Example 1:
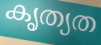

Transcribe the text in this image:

കൃത്യത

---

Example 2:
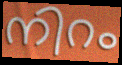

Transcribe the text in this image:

നിറം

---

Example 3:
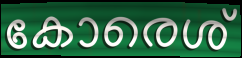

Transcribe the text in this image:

കോരെശ്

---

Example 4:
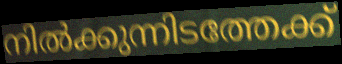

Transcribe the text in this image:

നിൽക്കുന്നിടത്തേക്ക്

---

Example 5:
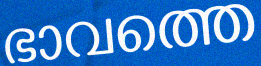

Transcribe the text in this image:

ഭാവത്തെ